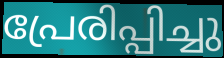
പ്രേരിപ്പിച്ചു